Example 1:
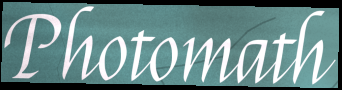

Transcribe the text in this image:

Photomath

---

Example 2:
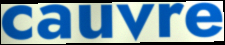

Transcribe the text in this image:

cauvre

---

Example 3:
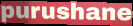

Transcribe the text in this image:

purushane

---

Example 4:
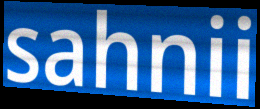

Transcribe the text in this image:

sahnii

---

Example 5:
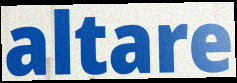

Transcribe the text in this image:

altare